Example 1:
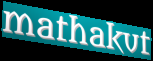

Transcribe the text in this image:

mathakut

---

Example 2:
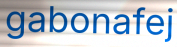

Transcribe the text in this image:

gabonafej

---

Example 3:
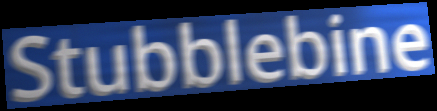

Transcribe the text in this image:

Stubblebine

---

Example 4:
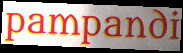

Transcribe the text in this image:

pampandi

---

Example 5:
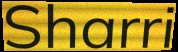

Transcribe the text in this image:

Sharri